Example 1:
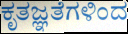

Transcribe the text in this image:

ಕೃತಜ್ಞತೆಗಳಿಂದ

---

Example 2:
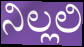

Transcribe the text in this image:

ನಿಲ್ಲಲಿ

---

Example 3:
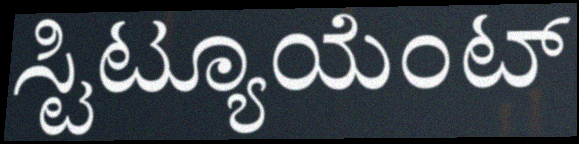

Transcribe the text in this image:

ಸ್ಟಿಟ್ಯೂಯೆಂಟ್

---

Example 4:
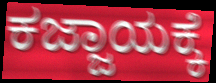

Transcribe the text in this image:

ಕಜ್ಜಾಯಕ್ಕೆ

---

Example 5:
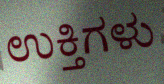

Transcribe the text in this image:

ಉಕ್ತಿಗಳು